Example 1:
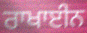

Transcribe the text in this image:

ਰਾਖਾਈਨ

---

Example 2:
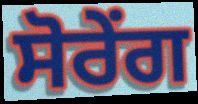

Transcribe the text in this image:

ਸੋਰੇਂਗ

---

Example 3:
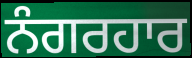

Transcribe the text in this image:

ਨੰਗਰਹਾਰ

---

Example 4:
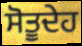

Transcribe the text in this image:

ਸੋਤੂਦੇਹ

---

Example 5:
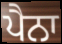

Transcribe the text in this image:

ਪੈਨਾ